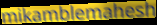
mikamblemahesh